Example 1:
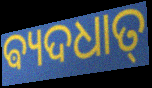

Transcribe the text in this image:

ଵ୍ୟଦଧାତ୍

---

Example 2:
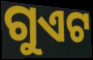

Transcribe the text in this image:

ଗୁଏଟ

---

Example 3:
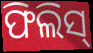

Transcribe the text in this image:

ଫିଲିସ୍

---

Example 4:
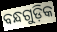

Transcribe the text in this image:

ବନ୍ଧଗୁଡ଼ିକ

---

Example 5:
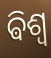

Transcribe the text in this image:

ଵିଶ୍ୱ